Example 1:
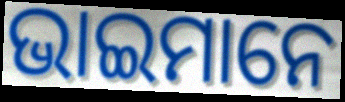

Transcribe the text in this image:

ଭାଇମାନେ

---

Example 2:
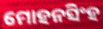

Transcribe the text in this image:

ମୋହନସିଂହ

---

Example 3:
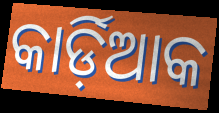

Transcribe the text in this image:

କାର୍ଡ଼ିଆକ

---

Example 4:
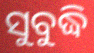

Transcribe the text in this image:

ସୁବୁଦ୍ଧି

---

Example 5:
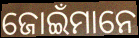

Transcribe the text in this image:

ଜୋଇଁମାନେ